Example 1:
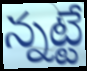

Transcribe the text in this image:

న్నట్టే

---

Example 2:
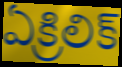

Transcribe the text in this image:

ఏక్రిలిక్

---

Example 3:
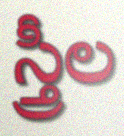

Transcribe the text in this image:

స్త్రీల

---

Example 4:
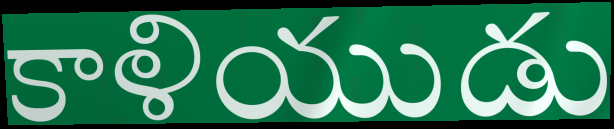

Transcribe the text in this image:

కాళియుడు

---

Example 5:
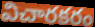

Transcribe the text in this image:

విచారకరం